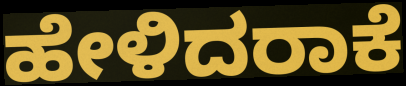
ಹೇಳಿದರಾಕೆ